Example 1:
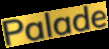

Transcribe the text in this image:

Palade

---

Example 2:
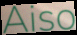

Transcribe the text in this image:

Aiso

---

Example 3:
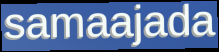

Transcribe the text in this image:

samaajada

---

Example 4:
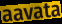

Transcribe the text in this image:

aavata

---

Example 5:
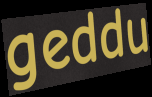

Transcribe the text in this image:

geddu